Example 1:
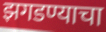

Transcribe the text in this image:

झगडण्याचा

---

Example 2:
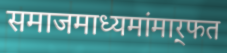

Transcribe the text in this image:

समाजमाध्यमांमार्फत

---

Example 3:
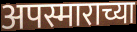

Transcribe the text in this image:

अपस्माराच्या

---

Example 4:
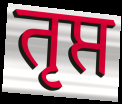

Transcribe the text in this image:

तृप्त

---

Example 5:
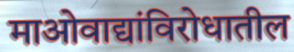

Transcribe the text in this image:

माओवाद्यांविरोधातील